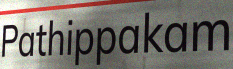
Pathippakam